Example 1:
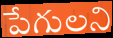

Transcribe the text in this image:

పేగులని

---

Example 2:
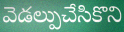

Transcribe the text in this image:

వెడల్పుచేసికొని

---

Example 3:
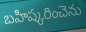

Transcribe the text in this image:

బహిష్కరించెను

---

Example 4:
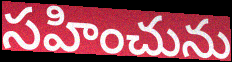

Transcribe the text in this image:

సహించును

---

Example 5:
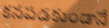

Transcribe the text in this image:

కనపడకుండానే